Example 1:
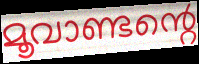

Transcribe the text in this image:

മൂവാണ്ടന്റെ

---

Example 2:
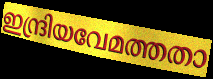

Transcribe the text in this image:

ഇന്ദ്രിയവേമത്തതാ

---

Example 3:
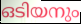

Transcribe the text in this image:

ഒടിയനും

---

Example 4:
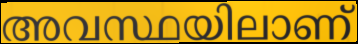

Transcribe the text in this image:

അവസ്ഥയിലാണ്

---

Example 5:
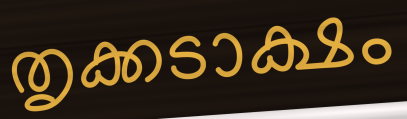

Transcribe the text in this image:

തൃക്കടാക്ഷം